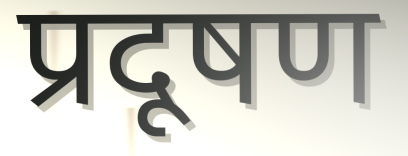
प्रदूषण